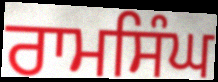
ਰਾਮਸਿੰਘ